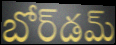
బోర్‌డమ్